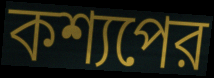
কশ্যপের